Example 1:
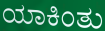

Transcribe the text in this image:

ಯಾಕಿಂತು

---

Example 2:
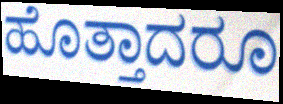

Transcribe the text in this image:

ಹೊತ್ತಾದರೂ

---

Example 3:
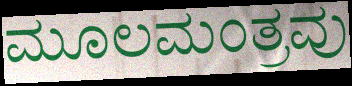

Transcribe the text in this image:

ಮೂಲಮಂತ್ರವು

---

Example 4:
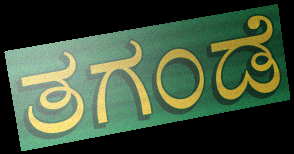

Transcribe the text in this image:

ತಗಂಡೆ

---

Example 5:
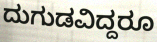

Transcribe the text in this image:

ದುಗುಡವಿದ್ದರೂ